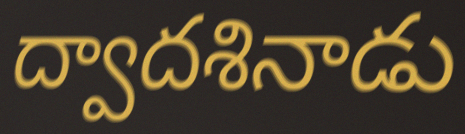
ద్వాదశినాడు